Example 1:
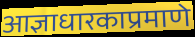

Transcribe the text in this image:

आज्ञाधारकाप्रमाणे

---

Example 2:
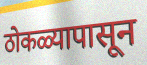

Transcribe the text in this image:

ठोकळ्यापासून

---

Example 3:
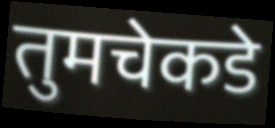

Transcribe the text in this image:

तुमचेकडे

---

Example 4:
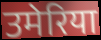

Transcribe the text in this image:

उमेरिया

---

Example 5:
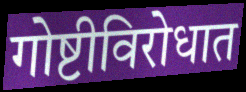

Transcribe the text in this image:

गोष्टीविरोधात